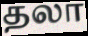
தலா